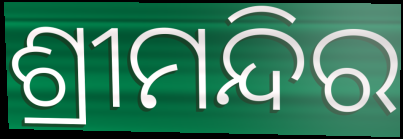
ଶ୍ରୀମନ୍ଦିର